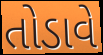
તોડાવે